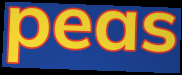
peas